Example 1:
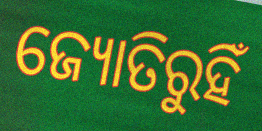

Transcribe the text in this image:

ଜ୍ୟୋତିରୁହିଁ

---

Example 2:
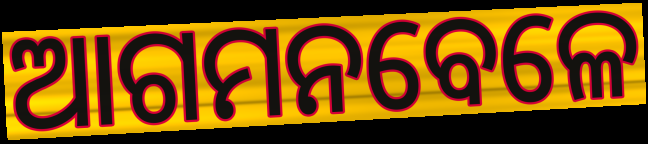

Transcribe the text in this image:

ଆଗମନବେଳେ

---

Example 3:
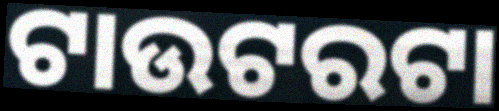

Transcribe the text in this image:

ଟାଉଟରଟା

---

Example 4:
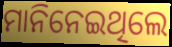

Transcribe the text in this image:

ମାନିନେଇଥିଲେ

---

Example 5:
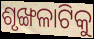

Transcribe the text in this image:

ଶୃଙ୍ଖଳାଟିକୁ